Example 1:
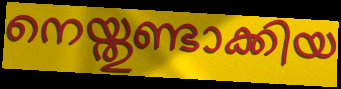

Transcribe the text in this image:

നെയ്തുണ്ടാക്കിയ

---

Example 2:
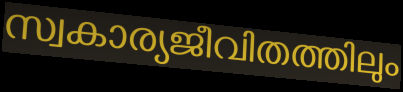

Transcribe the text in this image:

സ്വകാര്യജീവിതത്തിലും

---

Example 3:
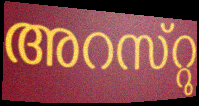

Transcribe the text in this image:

അറസ്‌റ്റു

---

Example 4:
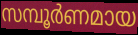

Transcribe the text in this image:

സമ്പൂർണമായ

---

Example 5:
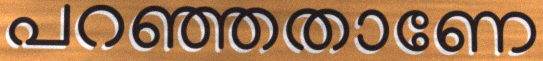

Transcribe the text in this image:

പറഞ്ഞതാണേ